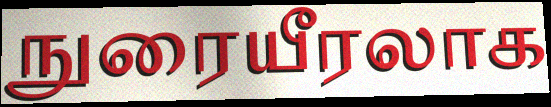
நுரையீரலாக